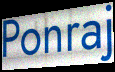
Ponraj